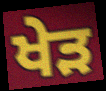
ਖੇੜ